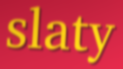
slaty